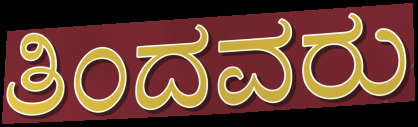
ತಿಂದವರು